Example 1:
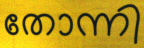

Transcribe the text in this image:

തോന്നി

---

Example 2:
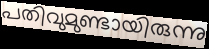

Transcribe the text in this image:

പതിവുമുണ്ടായിരുന്നു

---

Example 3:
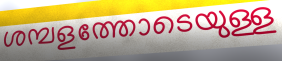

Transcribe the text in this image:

ശമ്പളത്തോടെയുള്ള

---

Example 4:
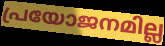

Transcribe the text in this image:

പ്രയോജനമില്ല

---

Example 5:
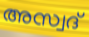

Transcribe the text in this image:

അസ്വദ്